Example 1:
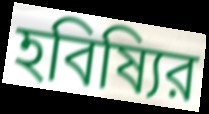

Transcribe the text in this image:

হবিষ্যির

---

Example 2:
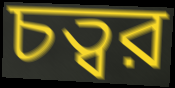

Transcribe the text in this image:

চত্বর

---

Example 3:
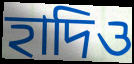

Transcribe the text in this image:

হাদিও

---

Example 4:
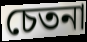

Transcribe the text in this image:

চেতনা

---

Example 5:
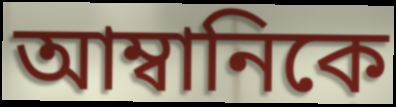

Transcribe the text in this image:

আম্বানিকে